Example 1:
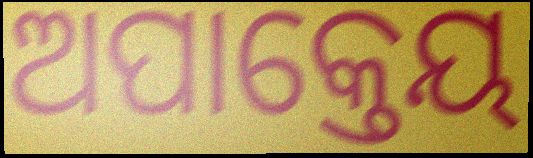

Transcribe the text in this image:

ଅପାକ୍ତେୟ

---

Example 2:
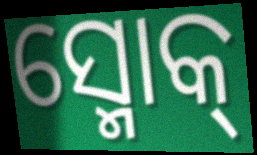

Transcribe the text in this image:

ସ୍ମୋକ୍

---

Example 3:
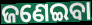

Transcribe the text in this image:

ଜଣେଇବା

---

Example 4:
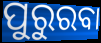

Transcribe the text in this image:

ପୁରୁରବା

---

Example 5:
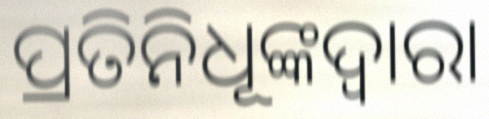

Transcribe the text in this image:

ପ୍ରତିନିଧୂଙ୍କଦ୍ଵାରା